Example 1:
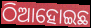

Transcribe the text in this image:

ଠିଆହୋଇଛ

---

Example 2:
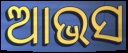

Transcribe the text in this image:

ଆଭସ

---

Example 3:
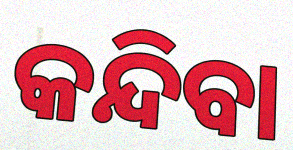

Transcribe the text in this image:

କନ୍ଦିବା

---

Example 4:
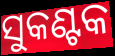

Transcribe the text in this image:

ସୁକଣ୍ଟକ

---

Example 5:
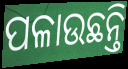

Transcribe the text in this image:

ପଳାଉଛନ୍ତି